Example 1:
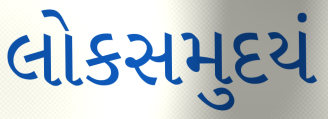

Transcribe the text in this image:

લોકસમુદયં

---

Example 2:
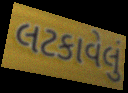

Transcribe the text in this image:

લટકાવેલું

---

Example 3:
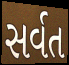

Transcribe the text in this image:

સર્વત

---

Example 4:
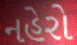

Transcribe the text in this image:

નહેરો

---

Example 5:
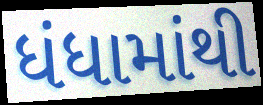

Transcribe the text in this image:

ધંધામાંથી